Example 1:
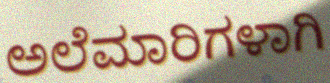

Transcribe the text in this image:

ಅಲೆಮಾರಿಗಳಾಗಿ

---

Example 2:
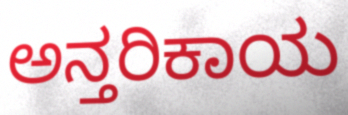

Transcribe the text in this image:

ಅನ್ತರಿಕಾಯ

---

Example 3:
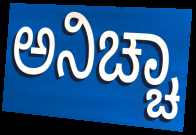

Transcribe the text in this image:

ಅನಿಚ್ಚಾ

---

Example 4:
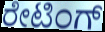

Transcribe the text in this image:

ರೇಟಿಂಗ್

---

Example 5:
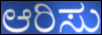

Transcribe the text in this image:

ಆರಿಸು